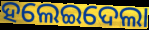
ହଲେଇଦେଲା